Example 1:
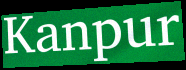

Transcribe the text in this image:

Kanpur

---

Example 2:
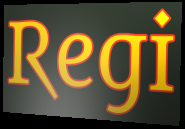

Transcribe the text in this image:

Regi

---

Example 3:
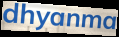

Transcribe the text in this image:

dhyanma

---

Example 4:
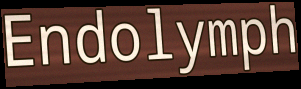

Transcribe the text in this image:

Endolymph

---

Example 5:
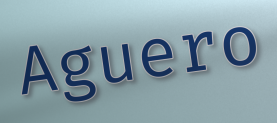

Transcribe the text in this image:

Aguero